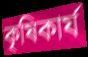
কৃষিকাৰ্য